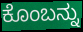
ಕೊಂಬನ್ನು